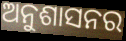
ଅନୁଶାସନର